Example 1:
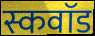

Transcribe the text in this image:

स्कवॉड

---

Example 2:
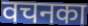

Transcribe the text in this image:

वचनका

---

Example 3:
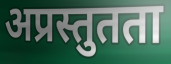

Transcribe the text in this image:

अप्रस्तुतता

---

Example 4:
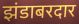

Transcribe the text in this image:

झंडाबरदार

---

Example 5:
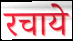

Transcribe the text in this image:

रचाये